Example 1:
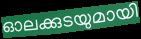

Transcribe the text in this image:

ഓലക്കുടയുമായി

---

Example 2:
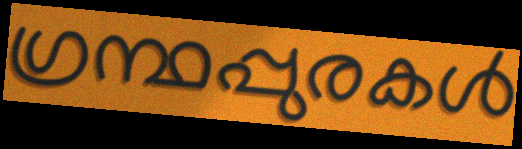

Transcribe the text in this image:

ഗ്രന്ഥപ്പുരകൾ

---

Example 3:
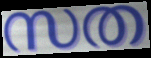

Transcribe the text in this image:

സത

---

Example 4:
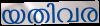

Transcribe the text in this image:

യതിവര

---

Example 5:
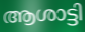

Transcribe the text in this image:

ആശാട്ടി